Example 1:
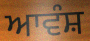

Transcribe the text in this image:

ਆਵੰਸ਼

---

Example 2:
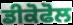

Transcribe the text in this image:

ਡੀਕੋਫੋਲ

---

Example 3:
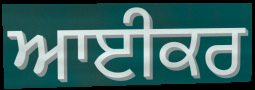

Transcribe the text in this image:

ਆਈਕਰ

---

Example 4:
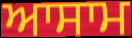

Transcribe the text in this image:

ਆਸਾਮ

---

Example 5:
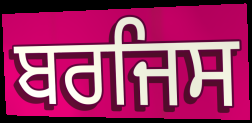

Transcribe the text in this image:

ਬਰਜਿਸ